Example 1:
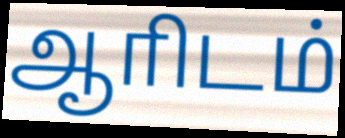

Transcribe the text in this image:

ஆரிடம்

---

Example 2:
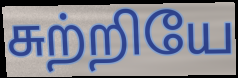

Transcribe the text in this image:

சுற்றியே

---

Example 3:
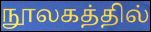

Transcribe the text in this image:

நூலகத்தில்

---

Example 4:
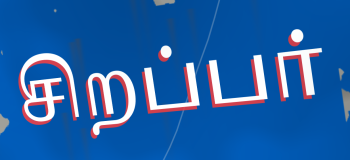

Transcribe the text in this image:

சிறப்பர்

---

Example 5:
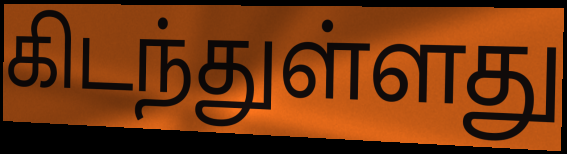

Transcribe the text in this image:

கிடந்துள்ளது